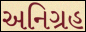
અનિગ્રહ